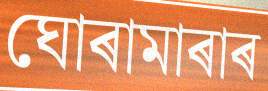
ঘোৰামাৰাৰ